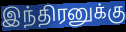
இந்திரனுக்கு